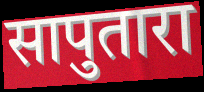
सापुतारा